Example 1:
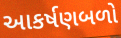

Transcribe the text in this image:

આકર્ષણબળો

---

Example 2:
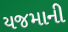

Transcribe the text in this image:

યજમાની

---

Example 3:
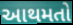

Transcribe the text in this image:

આથમતો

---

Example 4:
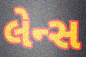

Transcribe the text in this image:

લેન્સ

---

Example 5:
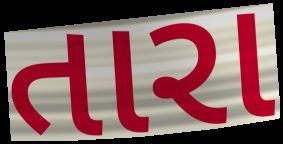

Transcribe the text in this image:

તારા